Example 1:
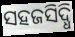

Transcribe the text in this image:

ସହଜସିଦ୍ଧି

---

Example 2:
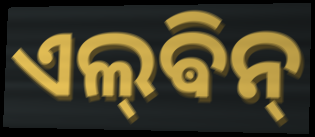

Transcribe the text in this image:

ଏଲ୍‌ଵିନ୍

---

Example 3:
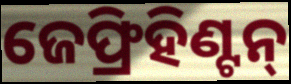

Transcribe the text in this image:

ଜେଫ୍ରିହିଣ୍ଟନ୍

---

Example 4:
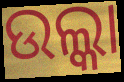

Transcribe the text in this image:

ଉଲ୍କା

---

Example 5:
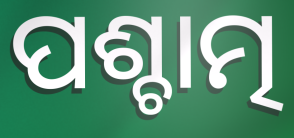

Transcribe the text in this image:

ପଶ୍ଚାତ୍ମ